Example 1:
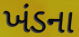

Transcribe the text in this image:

ખંડના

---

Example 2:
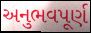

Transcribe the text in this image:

અનુભવપૂર્ણ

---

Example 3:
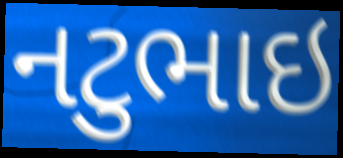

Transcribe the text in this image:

નટુભાઇ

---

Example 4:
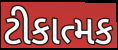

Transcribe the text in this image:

ટીકાત્મક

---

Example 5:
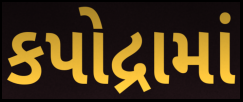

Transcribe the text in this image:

કપોદ્રામાં